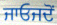
ਜਾਓਜਦੋਂ